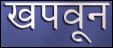
खपवून